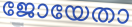
ജോയേതാ